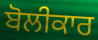
ਬੋਲੀਕਾਰ